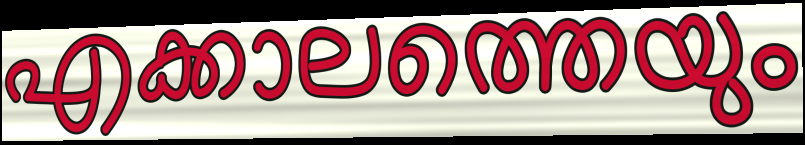
എക്കാലത്തെയും